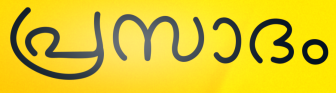
പ്രസാദം